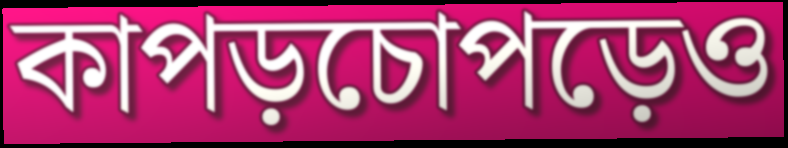
কাপড়চোপড়েও